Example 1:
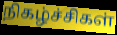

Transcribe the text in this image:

நிகழ்ச்சிகள்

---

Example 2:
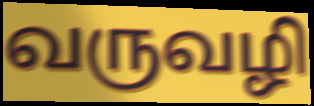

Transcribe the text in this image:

வருவழி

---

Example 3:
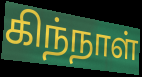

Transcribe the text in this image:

கிந்நாள்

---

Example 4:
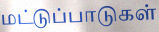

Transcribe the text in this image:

மட்டுப்பாடுகள்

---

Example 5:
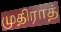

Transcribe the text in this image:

முதிராத்